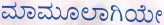
ಮಾಮೂಲಾಗಿಯೇ